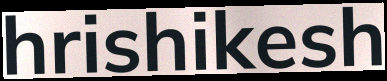
hrishikesh